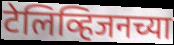
टेलिव्हिजनच्या